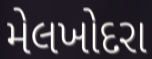
મેલખોદરા